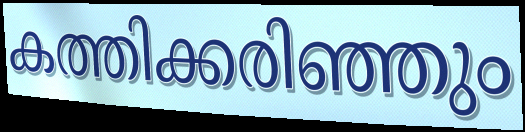
കത്തിക്കരിഞ്ഞും